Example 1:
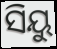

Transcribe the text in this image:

ସିୟୁ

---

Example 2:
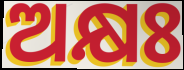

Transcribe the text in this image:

ଅକ୍ଷଃ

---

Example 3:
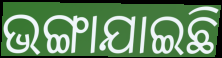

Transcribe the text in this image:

ଭଙ୍ଗାଯାଇଛି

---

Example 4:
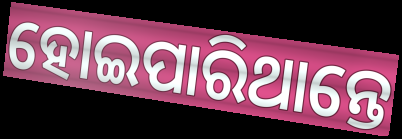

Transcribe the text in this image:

ହୋଇପାରିଥାନ୍ତେ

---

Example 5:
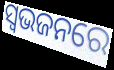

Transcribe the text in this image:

ସ୍ଵଭଜନରେ